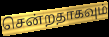
சென்றதாகவும்